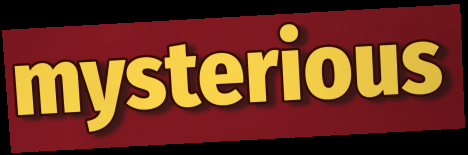
mysterious